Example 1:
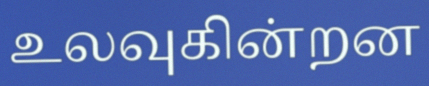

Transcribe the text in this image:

உலவுகின்றன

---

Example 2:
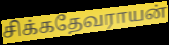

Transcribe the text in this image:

சிக்கதேவராயன்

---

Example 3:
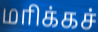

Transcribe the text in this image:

மரிக்கச்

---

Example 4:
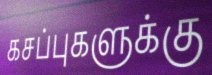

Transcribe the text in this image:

கசப்புகளுக்கு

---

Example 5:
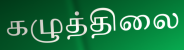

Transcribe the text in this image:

கழுத்திலை